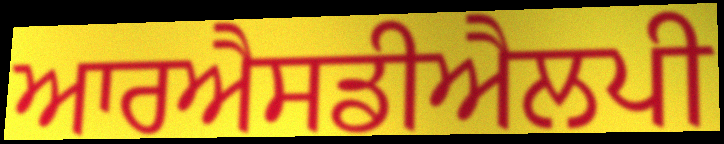
ਆਰਐਸਡੀਐਲਪੀ